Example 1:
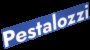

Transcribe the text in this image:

Pestalozzi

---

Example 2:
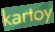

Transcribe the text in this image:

kartoy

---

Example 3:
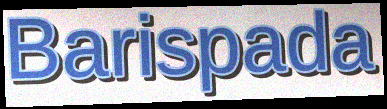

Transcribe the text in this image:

Barispada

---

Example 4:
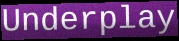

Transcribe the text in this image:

Underplay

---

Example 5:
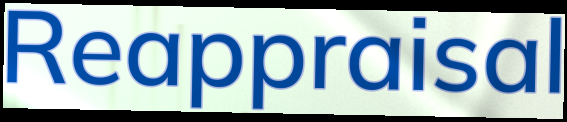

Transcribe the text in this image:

Reappraisal